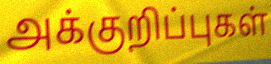
அக்குறிப்புகள்